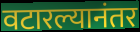
वटारल्यानंतर